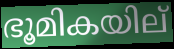
ഭൂമികയില്